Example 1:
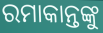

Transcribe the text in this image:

ରମାକାନ୍ତଙ୍କୁ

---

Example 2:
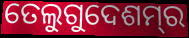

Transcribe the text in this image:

ତେଲୁଗୁଦେଶମ୍‌ର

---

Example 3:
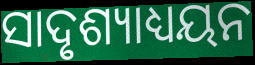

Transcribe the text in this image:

ସାଦୃଶ୍ୟାଧ୍ୟୟନ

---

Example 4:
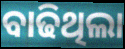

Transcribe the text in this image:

ବାଢିଥିଲା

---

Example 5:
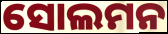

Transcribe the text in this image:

ସୋଲମନ